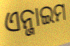
ଏନ୍ଜାଇମ